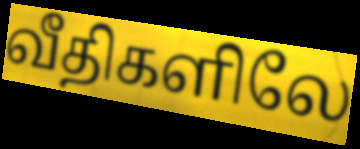
வீதிகளிலே